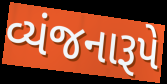
વ્યંજનારૂપે